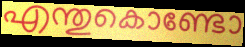
എന്തുകൊണ്ടോ